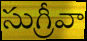
సుగ్రీవా